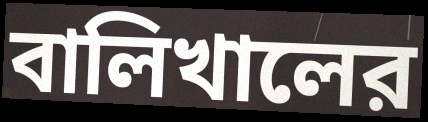
বালিখালের